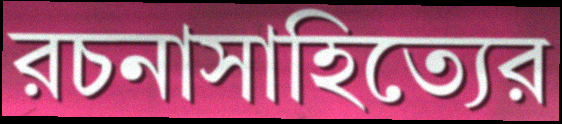
রচনাসাহিত্যের